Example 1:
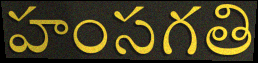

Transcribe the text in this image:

హంసగతి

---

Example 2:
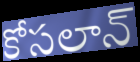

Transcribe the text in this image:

కోసలాన్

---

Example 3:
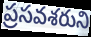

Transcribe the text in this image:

ప్రసవశరుని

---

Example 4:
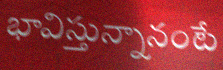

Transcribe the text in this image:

భావిస్తున్నానంటే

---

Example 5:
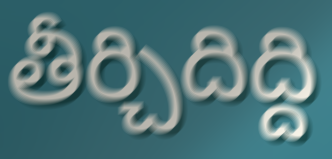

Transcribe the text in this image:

తీర్చిదిద్ది